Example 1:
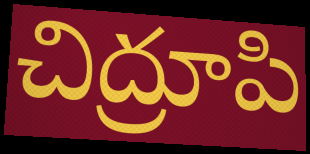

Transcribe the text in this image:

చిద్రూపి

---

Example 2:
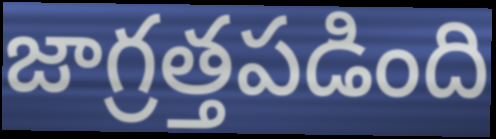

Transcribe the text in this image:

జాగ్రత్తపడింది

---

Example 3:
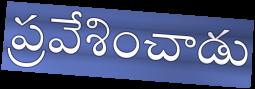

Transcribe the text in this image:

ప్రవేశించాడు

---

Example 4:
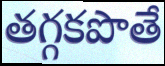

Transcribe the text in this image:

తగ్గకపొతే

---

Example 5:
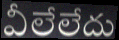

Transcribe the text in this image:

వీలేలేదు